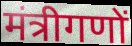
मंत्रीगणों